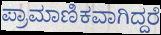
ಪ್ರಾಮಾಣಿಕವಾಗಿದ್ದರೆ